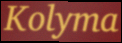
Kolyma